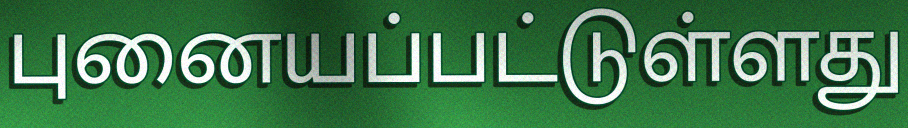
புனையப்பட்டுள்ளது